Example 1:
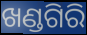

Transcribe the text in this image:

ଖଣ୍ଡଗିରି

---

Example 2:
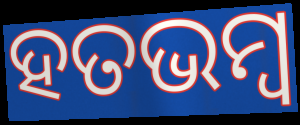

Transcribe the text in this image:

ହତଭମ୍ୱ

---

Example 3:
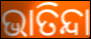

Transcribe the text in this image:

ଭାତିନ୍ଦା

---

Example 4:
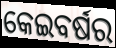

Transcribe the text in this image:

କେଇବର୍ଷର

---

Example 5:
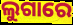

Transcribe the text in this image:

ଲୁଗାରେ